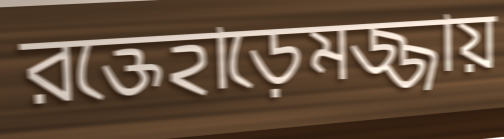
রক্তেহাড়েমজ্জায়